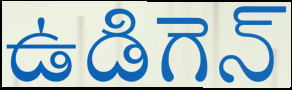
ఉడిగెన్